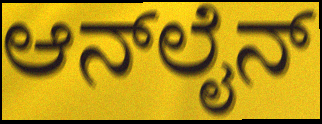
ಆನ್‍ಲೈನ್